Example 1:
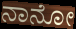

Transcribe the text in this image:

ನಾನೋ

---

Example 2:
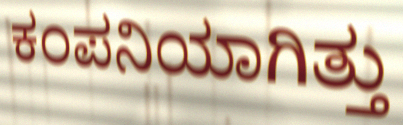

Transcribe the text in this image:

ಕಂಪನಿಯಾಗಿತ್ತು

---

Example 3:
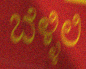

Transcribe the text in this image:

ಬೆಳ್ಳಿಲಿ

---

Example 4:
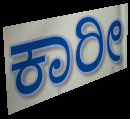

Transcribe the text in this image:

ಕಾರೀ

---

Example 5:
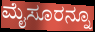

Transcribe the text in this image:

ಮೈಸೂರನ್ನೂ